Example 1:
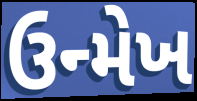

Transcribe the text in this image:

ઉન્મેખ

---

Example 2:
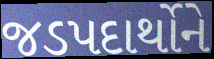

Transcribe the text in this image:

જડપદાર્થોને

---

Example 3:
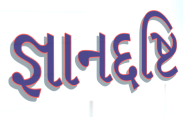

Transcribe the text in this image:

જ્ઞાનદ્દષ્ટિ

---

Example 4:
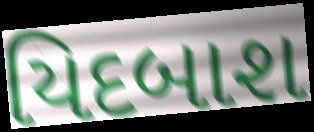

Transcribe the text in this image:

યિદબાશ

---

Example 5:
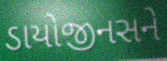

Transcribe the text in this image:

ડાયોજીનસને